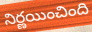
నిర్ణయించింది